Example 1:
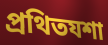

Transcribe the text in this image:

প্ৰথিতযশা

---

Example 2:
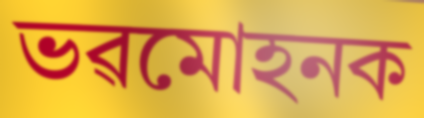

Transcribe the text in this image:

ভৱমোহনক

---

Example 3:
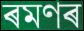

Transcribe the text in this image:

ৰমণৰ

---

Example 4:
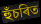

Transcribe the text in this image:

হুঁচৰিত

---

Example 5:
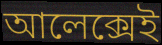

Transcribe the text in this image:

আলেক্সেই